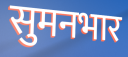
सुमनभार